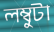
লম্বুটা